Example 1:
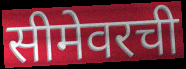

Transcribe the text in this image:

सीमेवरची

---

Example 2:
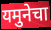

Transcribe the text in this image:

यमुनेचा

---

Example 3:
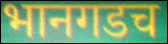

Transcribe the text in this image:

भानगडच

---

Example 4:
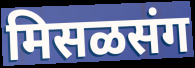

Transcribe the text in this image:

मिसळसंग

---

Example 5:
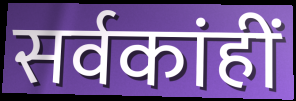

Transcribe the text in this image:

सर्वकांहीं